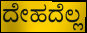
ದೇಹದೆಲ್ಲ